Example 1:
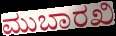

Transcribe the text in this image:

ಮುಬಾರಖಿ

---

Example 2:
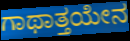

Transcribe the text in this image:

ಗಾಥಾತ್ತಯೇನ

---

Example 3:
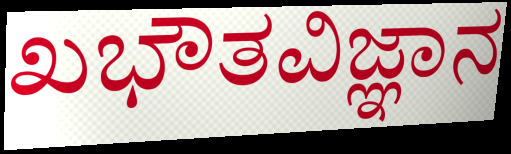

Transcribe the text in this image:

ಖಭೌತವಿಜ್ಞಾನ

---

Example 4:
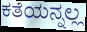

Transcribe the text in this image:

ಕತೆಯನ್ನಲ್ಲ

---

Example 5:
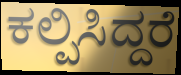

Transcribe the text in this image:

ಕಲ್ಪಿಸಿದ್ದರೆ